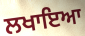
ਲਖਾਇਆ